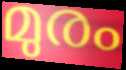
മുരം